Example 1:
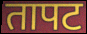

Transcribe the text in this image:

तापट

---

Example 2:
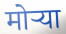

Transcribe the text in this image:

मोर्‍या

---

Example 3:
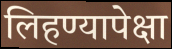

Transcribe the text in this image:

लिहण्यापेक्षा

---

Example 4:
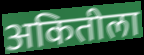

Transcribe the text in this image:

अकितीला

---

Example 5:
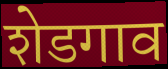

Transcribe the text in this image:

शेडगाव